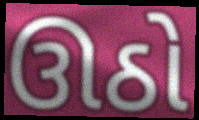
ઊઠો